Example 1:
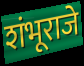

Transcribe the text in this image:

शंभूराजे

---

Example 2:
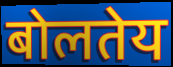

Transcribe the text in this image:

बोलतेय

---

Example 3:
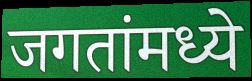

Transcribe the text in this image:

जगतांमध्ये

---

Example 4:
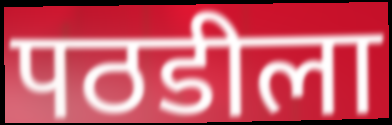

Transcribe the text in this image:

पठडीला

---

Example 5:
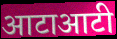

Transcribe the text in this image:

आटाआटी